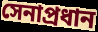
সেনাপ্রধান